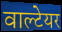
वाल्टेयर